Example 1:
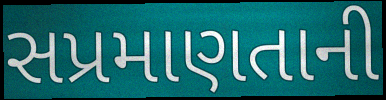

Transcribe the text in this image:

સપ્રમાણતાની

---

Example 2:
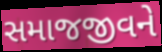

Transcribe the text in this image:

સમાજજીવને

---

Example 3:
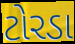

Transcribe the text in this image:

ટોરડા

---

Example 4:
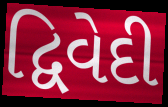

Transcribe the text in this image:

દ્વિવેદી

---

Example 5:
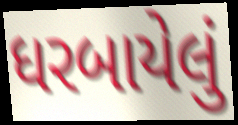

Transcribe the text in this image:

ધરબાયેલું